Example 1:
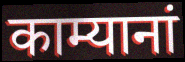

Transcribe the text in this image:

काम्यानां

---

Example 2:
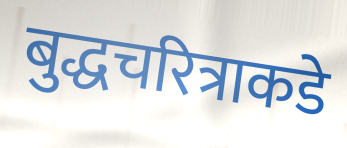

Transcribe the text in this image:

बुद्धचरित्राकडे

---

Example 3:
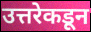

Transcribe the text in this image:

उत्तरेकडून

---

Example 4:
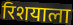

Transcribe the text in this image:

रिशयाला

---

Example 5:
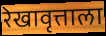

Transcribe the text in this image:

रेखावृत्ताला